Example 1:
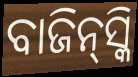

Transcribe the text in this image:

ବାଜିନ୍‌ସ୍କି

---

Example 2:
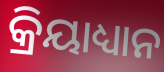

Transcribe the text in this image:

କ୍ରିୟାଧ୍ୟାନ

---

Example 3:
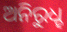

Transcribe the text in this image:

ଅନିରୁଧ୍ହ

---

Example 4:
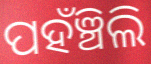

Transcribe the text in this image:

ପହଁଞ୍ଚିଲି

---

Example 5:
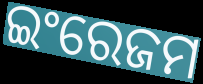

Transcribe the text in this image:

ଇଂରେଜମ